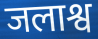
जलाश्व